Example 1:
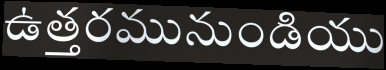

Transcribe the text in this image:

ఉత్తరమునుండియు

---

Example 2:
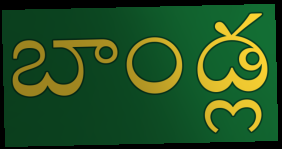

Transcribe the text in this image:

బాండ్ల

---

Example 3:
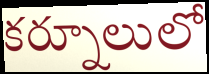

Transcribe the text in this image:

కర్నూలులో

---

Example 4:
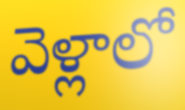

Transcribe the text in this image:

వెళ్లాలో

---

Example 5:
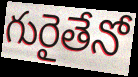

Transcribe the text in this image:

గురైతేనో